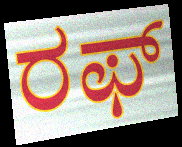
ರಫ್